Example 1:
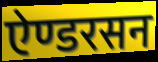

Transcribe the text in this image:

ऐण्डरसन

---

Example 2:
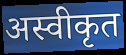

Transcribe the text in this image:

अस्वीकृत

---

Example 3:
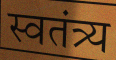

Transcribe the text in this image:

स्वतंत्र्य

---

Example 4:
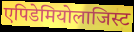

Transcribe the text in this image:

एपिडेमियोलाजिस्ट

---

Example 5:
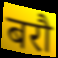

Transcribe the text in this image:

बरौ